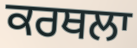
ਕਰਥਲਾ